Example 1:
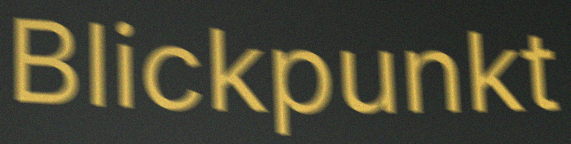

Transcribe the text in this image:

Blickpunkt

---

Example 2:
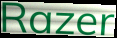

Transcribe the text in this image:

Razer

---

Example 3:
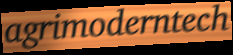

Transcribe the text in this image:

agrimoderntech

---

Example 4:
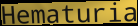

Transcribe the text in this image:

Hematuria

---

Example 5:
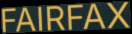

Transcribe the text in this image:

FAIRFAX